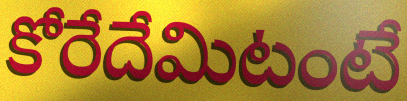
కోరేదేమిటంటే